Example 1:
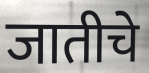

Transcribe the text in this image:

जातीचे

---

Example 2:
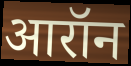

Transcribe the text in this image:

आरॉन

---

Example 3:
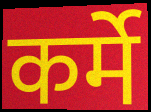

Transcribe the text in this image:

कर्मे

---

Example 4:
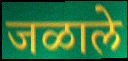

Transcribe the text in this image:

जळाले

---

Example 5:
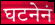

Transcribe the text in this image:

घटनेनं